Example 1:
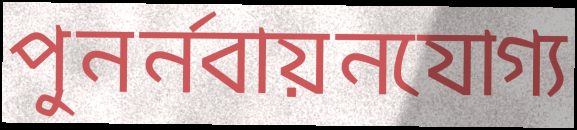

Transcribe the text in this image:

পুনর্নবায়নযোগ্য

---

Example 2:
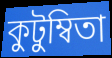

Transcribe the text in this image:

কুটুম্বিতা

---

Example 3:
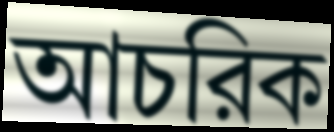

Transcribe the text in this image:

আচরিক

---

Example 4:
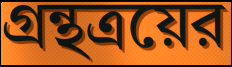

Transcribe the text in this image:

গ্রন্থত্রয়ের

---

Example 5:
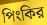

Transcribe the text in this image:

পিংকির